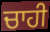
ਚਾਹੀ